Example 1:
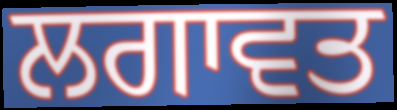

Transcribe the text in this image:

ਲਗਾਵਤ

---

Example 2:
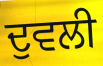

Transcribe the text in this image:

ਦੁਵਲੀ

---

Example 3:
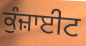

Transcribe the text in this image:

ਕੁੰਜ਼ਾਈਟ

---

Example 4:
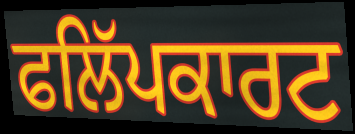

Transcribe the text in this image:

ਫਲਿੱਪਕਾਰਟ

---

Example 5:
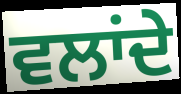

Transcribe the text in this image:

ਵਲਾਂਦੇ